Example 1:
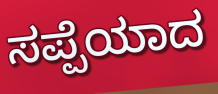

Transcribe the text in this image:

ಸಪ್ಪೆಯಾದ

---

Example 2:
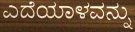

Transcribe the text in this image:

ಎದೆಯಾಳವನ್ನು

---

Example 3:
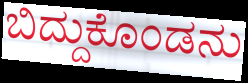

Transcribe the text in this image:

ಬಿದ್ದುಕೊಂಡನು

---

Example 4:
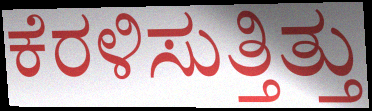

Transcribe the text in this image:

ಕೆರಳಿಸುತ್ತಿತ್ತು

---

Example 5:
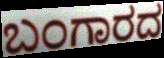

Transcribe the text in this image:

ಬಂಗಾರದ